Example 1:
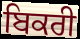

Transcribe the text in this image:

ਬਿਕਰੀ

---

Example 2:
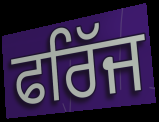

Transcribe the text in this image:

ਫਰਿੱਜ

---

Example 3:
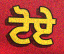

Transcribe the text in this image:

ਟੋਏ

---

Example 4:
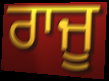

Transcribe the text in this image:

ਰਾਜੂ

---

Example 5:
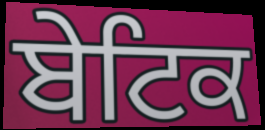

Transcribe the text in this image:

ਬੇਟਿਕ